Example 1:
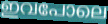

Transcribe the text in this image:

ഇവപോലെ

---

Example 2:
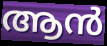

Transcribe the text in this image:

ആൻ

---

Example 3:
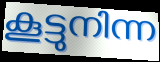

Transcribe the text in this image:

കൂട്ടുനിന്ന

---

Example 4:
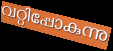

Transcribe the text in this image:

വറ്റിപ്പോകുന്നു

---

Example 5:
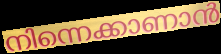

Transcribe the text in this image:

നിന്നെക്കാണാൻ